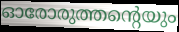
ഓരോരുത്തന്റെയും